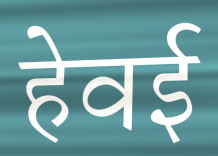
हेवई